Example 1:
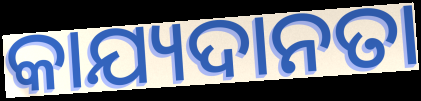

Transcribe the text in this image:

କାଯ୍ୟଦାନତା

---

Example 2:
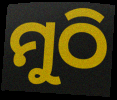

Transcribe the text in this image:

ମୁଠି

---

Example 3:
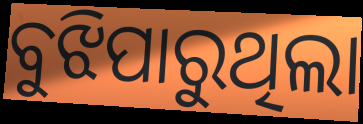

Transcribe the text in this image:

ବୁଝିପାରୁଥିଲା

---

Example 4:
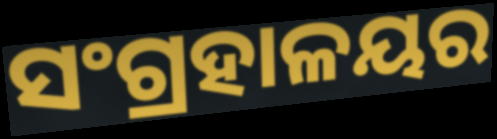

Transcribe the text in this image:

ସଂଗ୍ରହାଳୟର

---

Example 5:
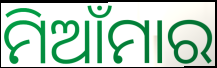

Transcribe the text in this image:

ମିଆଁମାର